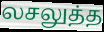
லசலுத்த